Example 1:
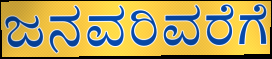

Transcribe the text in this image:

ಜನವರಿವರೆಗೆ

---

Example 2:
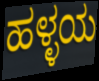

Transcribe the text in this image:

ಹಳ್ಳಯ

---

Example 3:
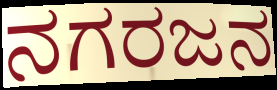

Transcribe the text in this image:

ನಗರಜನ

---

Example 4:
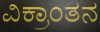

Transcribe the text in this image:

ವಿಕ್ರಾಂತನ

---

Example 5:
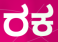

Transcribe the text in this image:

ರಕ